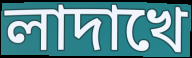
লাদাখে